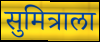
सुमित्राला